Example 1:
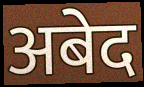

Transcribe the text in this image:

अबेद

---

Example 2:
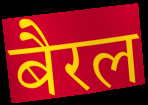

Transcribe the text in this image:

बैरल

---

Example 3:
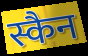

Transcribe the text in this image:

स्कैन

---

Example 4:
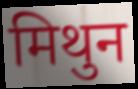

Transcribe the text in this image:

मिथुन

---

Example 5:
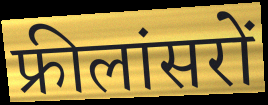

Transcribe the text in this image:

फ्रीलांसरों